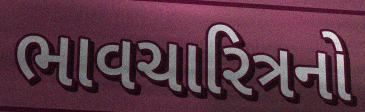
ભાવચારિત્રનો